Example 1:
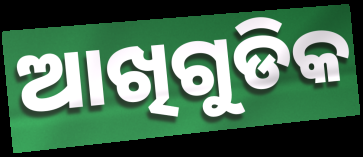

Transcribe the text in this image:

ଆଖିଗୁଡିକ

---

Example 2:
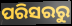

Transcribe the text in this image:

ପରିସରରୁ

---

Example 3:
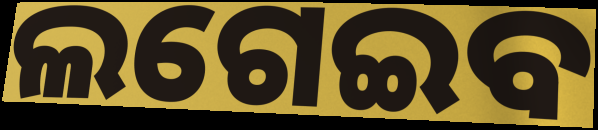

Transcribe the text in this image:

ଲଗେଇବ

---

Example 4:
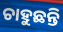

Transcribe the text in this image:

ଚାହୁଛନ୍ତି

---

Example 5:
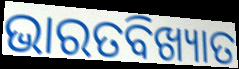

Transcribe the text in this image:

ଭାରତବିଖ୍ୟାତ